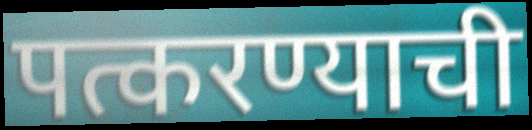
पत्करण्याची